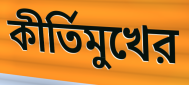
কীর্তিমুখের